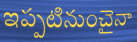
ఇప్పటినుంచైనా